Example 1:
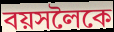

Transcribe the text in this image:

বয়সলৈকে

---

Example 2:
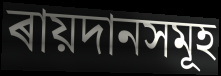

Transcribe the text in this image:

ৰায়দানসমূহ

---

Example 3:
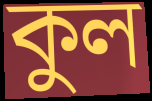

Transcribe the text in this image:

কুল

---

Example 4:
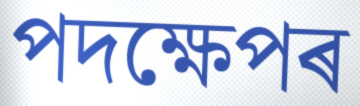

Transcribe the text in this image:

পদক্ষেপৰ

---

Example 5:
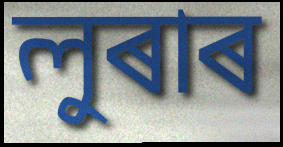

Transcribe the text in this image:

লুৰাৰ